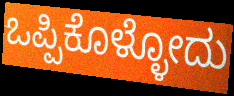
ಒಪ್ಪಿಕೊಳ್ಳೋದು